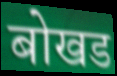
बोखड